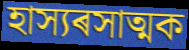
হাস্যৰসাত্মক